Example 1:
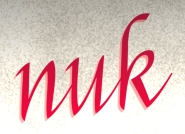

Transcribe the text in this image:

nuk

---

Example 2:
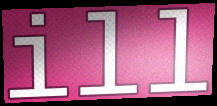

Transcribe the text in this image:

ill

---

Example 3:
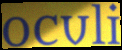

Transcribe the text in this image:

oculi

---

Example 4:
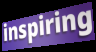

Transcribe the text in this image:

inspiring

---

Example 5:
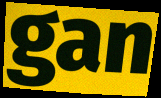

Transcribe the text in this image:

gan